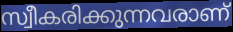
സ്വീകരിക്കുന്നവരാണ്